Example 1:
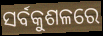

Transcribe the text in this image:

ସର୍ବକୁଶଳରେ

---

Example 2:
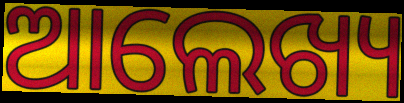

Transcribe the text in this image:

ଆଲେଖ୍ୟ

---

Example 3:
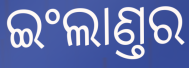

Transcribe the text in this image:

ଇଂଲାଣ୍ତର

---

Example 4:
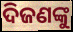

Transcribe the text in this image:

ଦିଜଣଙ୍କୁ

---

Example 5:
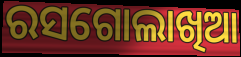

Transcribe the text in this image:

ରସଗୋଲାଖିଆ